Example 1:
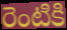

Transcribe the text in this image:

రెంటికి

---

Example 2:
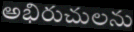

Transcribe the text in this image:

అభిరుచులను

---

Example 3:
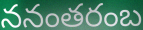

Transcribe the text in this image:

ననంతరంబ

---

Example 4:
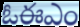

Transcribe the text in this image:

ఓఈఎం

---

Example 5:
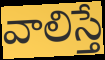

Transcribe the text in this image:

వాలిస్తే